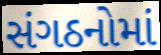
સંગઠનોમાં